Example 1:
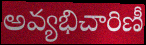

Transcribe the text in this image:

అవ్యభిచారిణీ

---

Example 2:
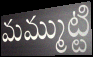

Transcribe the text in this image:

మమ్ముట్టి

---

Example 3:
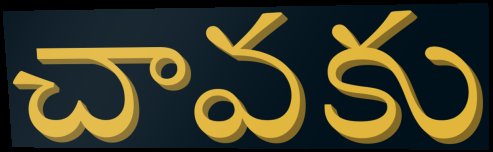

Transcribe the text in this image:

చావకు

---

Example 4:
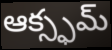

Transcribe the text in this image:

ఆక్స్ఫమ్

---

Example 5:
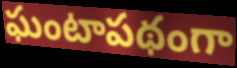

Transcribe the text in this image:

ఘంటాపథంగా